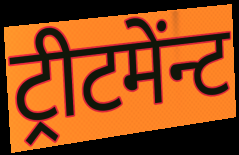
ट्रीटमेंन्ट